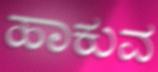
ಹಾಕುವ